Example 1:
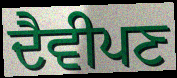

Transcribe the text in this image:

ਦੈਵੀਪਣ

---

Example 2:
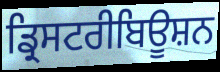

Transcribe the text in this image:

ਡ੍ਰਿਸਟਰੀਬਿਊਸ਼ਨ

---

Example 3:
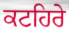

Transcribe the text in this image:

ਕਟਹਿਰੇ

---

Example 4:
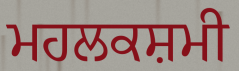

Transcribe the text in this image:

ਮਹਲਕਸ਼ਮੀ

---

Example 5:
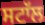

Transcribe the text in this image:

ਸਟਾੱਲ